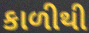
કાળીથી